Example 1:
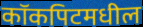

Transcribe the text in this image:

कॉकपिटमधील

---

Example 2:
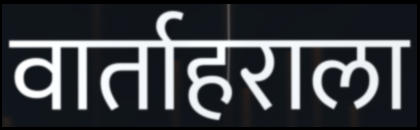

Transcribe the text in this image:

वार्ताहराला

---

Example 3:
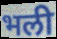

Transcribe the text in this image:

भली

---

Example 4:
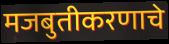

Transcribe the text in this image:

मजबुतीकरणाचे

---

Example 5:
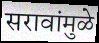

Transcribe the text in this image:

सरावांमुळे